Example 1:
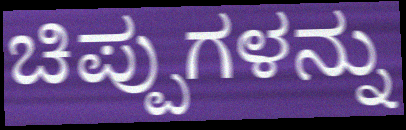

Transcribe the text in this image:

ಚಿಪ್ಪುಗಳನ್ನು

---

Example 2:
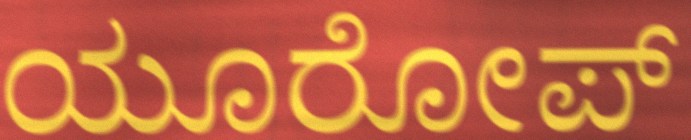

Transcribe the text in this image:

ಯೂರೋಪ್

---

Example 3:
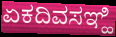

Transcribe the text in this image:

ಏಕದಿವಸಞ್ಹಿ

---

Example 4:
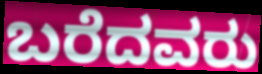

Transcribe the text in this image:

ಬರೆದವರು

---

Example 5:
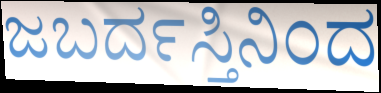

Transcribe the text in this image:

ಜಬರ್ದಸ್ತಿನಿಂದ